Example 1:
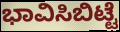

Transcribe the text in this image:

ಭಾವಿಸಿಬಿಟ್ಟೆ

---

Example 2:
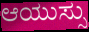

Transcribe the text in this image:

ಆಯುಸ್ಸು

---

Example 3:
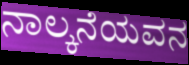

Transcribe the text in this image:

ನಾಲ್ಕನೆಯವನ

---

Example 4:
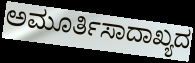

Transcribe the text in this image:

ಅಮೂರ್ತಿಸಾದಾಖ್ಯದ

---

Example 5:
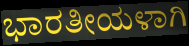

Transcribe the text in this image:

ಭಾರತೀಯಳಾಗಿ